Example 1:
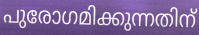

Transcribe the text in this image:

പുരോഗമിക്കുന്നതിന്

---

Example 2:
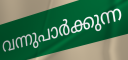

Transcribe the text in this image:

വന്നുപാർക്കുന്ന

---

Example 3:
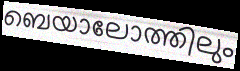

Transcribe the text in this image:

ബെയാലോത്തിലും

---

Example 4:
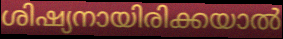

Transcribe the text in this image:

ശിഷ്യനായിരിക്കയാൽ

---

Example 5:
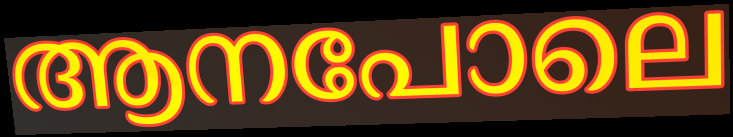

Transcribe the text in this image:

ആനപോലെ